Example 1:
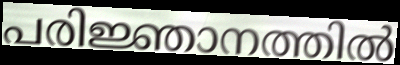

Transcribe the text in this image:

പരിജ്ഞാനത്തിൽ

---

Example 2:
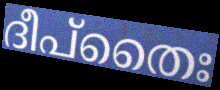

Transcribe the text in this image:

ദീപ്തൈഃ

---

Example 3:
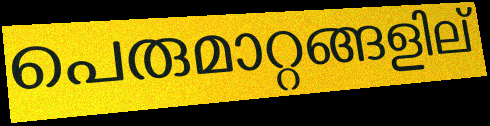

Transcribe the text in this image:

പെരുമാറ്റങ്ങളില്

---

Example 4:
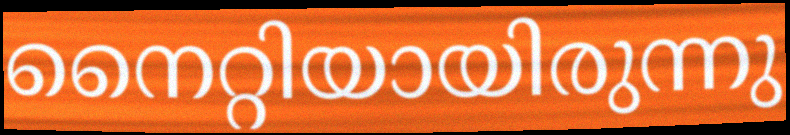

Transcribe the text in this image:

നൈറ്റിയായിരുന്നു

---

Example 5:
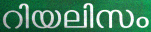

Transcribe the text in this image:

റിയലിസം